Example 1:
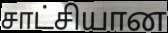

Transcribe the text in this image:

சாட்சியான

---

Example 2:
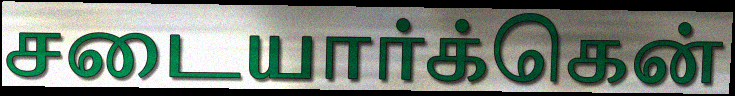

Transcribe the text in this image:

சடையார்க்கென்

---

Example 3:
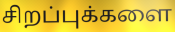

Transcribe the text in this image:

சிறப்புக்களை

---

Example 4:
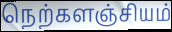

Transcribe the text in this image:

நெற்களஞ்சியம்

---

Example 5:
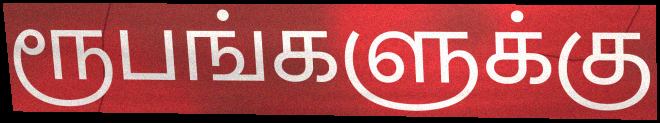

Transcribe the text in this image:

ரூபங்களுக்கு